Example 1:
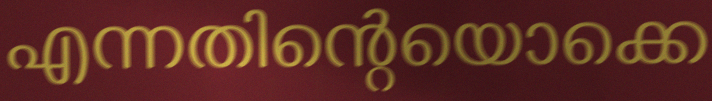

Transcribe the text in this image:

എന്നതിന്റെയൊക്കെ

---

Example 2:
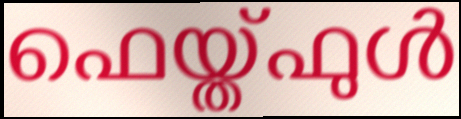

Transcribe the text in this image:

ഫെയ്ത്ഫുൾ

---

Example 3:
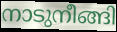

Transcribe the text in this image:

നാടുനീങ്ങി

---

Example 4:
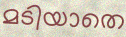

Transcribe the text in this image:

മടിയാതെ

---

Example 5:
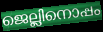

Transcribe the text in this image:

ജെല്ലിനൊപ്പം